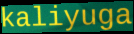
kaliyuga